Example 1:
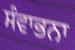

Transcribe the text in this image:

ਸੰਵਾਭਨਾ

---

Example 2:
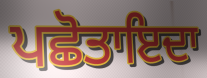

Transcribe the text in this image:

ਪਛੋਤਾਇਦਾ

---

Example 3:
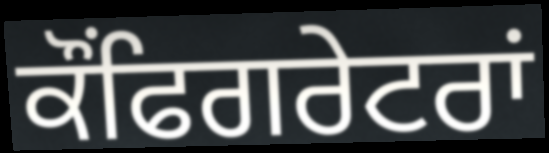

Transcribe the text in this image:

ਕੌਂਫਿਗਰੇਟਰਾਂ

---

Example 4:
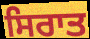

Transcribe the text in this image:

ਸਿਰਾਤ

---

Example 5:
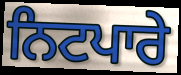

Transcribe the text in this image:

ਨਿਟਪਾਰੇ